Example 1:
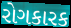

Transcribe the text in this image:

રોગકારક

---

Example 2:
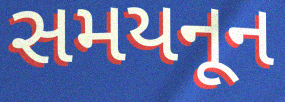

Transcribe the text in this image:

સમયનૂન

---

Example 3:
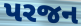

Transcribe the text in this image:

પરજન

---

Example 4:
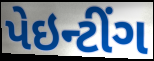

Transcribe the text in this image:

પેઇન્ટીંગ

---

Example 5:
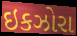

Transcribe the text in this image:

ઇકઝોરા